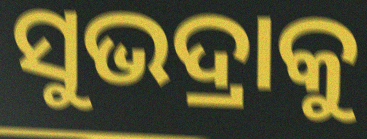
ସୁଭଦ୍ରାକୁ